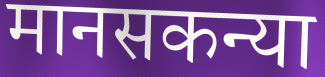
मानसकन्या